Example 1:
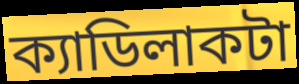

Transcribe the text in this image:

ক্যাডিলাকটা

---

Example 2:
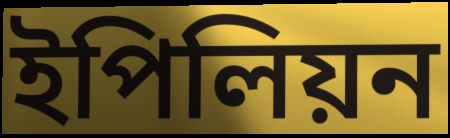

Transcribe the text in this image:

ইপিলিয়ন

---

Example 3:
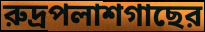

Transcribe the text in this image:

রুদ্রপলাশগাছের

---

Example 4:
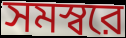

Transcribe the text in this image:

সমস্বরে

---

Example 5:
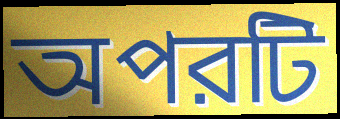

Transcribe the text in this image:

অপরটি